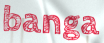
banga